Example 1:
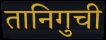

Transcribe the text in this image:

तानिगुची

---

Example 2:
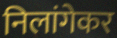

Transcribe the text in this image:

निलांगेकर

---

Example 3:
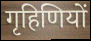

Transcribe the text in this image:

गृहिणियों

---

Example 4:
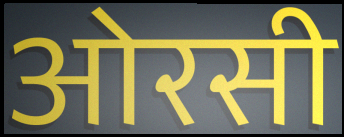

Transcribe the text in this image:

ओरसी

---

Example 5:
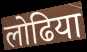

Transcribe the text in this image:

लोढिया